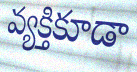
వ్యక్తికూడా